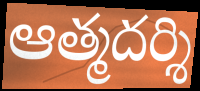
ఆత్మదర్శి